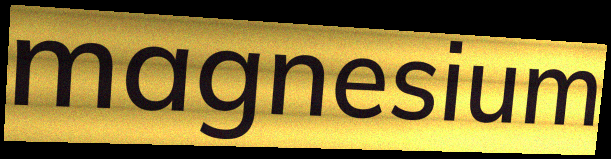
magnesium